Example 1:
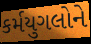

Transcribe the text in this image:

કર્મયુગલોને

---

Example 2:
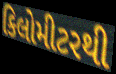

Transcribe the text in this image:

કિલોમીટરથી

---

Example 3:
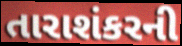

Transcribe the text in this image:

તારાશંકરની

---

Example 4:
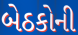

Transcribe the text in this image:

બેઠકોની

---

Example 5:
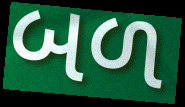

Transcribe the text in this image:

બળ